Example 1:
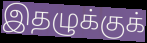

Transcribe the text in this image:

இதழுக்குக்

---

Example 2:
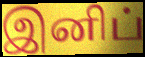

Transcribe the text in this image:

இனிப்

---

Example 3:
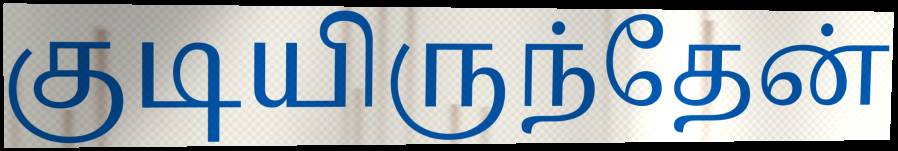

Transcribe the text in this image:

குடியிருந்தேன்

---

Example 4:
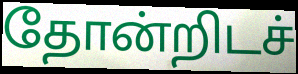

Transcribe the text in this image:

தோன்றிடச்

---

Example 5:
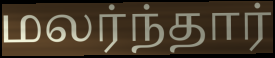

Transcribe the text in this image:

மலர்ந்தார்